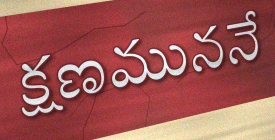
క్షణముననే